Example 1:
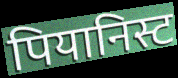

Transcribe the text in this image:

पियानिस्ट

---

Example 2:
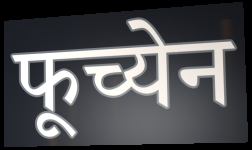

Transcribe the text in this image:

फूच्येन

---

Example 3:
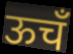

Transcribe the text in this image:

ऊचँ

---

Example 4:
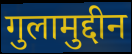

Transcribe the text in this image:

गुलामुद्दीन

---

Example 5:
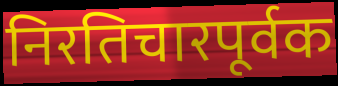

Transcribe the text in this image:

निरतिचारपूर्वक